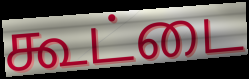
கூட்டை